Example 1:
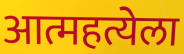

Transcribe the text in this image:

आत्महत्येला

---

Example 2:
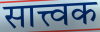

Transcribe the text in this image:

सात्त्वक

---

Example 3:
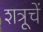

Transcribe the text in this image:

शत्रूचें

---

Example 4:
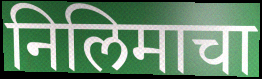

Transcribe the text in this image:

निलिमाचा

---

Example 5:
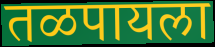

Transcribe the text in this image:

तळपायला